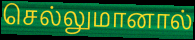
செல்லுமானால்